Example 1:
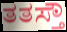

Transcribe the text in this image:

ತತಸ್ತೌ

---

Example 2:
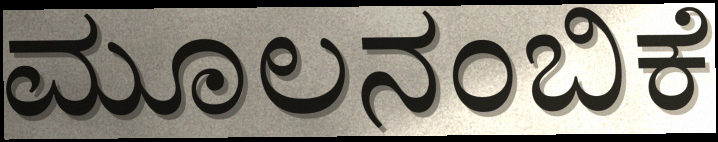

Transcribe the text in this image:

ಮೂಲನಂಬಿಕೆ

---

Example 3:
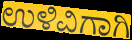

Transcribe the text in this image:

ಉಳಿವಿಗಾಗಿ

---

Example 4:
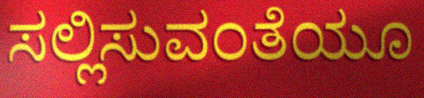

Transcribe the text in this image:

ಸಲ್ಲಿಸುವಂತೆಯೂ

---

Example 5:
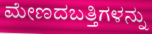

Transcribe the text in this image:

ಮೇಣದಬತ್ತಿಗಳನ್ನು